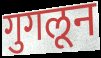
गुगलून